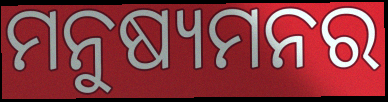
ମନୁଷ୍ୟମନର